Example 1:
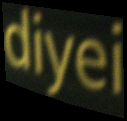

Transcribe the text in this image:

diyei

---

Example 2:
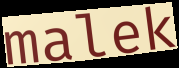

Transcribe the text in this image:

malek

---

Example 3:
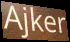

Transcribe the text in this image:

Ajker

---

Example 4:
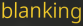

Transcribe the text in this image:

blanking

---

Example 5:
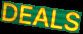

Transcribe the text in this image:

DEALS